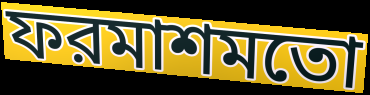
ফরমাশমতো